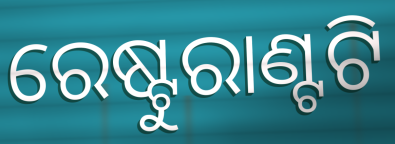
ରେଷ୍ଟୁରାଣ୍ଟଟି